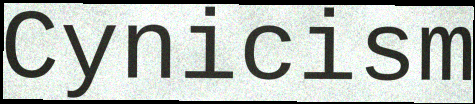
Cynicism